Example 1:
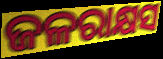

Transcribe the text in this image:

ଜଳରାକ୍ଷସ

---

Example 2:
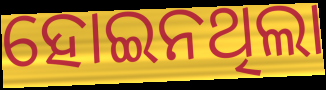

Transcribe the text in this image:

ହୋଇନଥିଲା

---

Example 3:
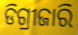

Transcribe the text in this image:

ଡିଗ୍ରୀଜାରି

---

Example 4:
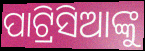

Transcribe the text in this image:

ପାଟ୍ରିସିଆଙ୍କୁ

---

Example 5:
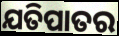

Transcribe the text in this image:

ଯତିପାତର